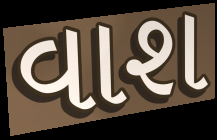
વાશ